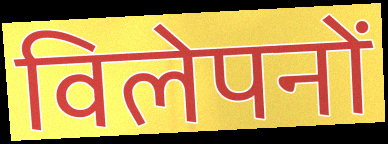
विलेपनों